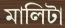
মালিটা